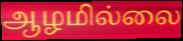
ஆழமில்லை